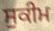
ਸੁਕੀਮ